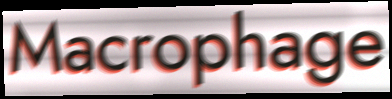
Macrophage